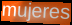
mujeres